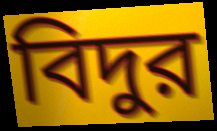
বিদুর